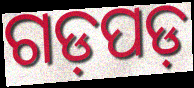
ଗଡ଼ପଡ଼